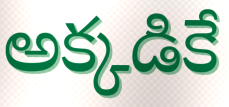
అక్కడికే